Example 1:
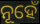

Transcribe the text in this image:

ନୂହେଁ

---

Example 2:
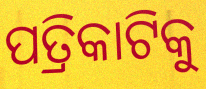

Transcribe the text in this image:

ପତ୍ରିକାଟିକୁ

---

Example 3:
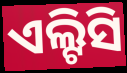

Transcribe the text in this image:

ଏଲ୍ଟିସି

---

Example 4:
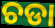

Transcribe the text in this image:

ଚଡା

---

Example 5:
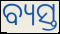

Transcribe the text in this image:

ବ୍ୟସ୍ତ